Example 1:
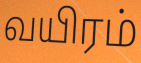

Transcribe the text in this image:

வயிரம்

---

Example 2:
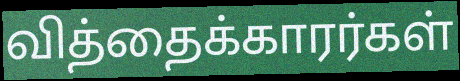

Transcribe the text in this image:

வித்தைக்காரர்கள்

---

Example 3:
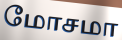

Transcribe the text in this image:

மோசமா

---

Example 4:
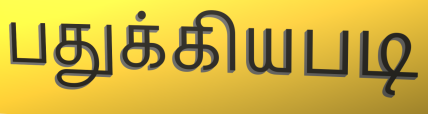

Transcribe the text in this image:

பதுக்கியபடி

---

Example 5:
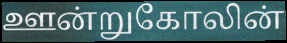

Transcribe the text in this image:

ஊன்றுகோலின்